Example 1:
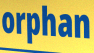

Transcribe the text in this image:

orphan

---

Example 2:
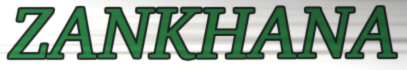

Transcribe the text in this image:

ZANKHANA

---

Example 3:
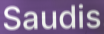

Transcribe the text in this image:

Saudis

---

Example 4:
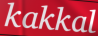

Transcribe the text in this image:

kakkal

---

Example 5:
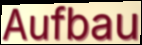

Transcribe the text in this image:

Aufbau